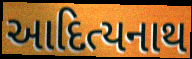
આદિત્યનાથ